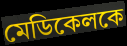
মেডিকেলকে